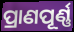
ପ୍ରାଣପୂର୍ଣ୍ଣ